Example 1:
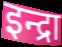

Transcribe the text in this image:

इन्द्रा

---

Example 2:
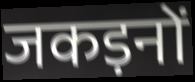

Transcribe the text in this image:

जकड़नों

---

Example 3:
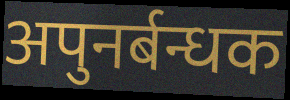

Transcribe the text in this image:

अपुनर्बन्धक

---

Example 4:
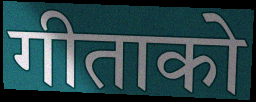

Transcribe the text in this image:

गीताको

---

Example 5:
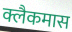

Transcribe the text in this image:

क्लैकमास